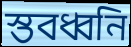
স্তবধ্বনি